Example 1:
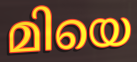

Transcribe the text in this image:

മിയെ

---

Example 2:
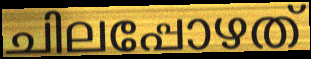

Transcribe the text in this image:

ചിലപ്പോഴത്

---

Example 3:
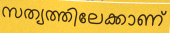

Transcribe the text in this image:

സത്യത്തിലേക്കാണ്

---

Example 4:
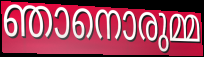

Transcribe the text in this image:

ഞാനൊരുമ്മ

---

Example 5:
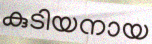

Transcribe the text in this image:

കുടിയനായ